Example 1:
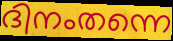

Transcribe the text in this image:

ദിനംതന്നെ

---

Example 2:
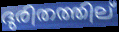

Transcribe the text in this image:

ദുരിതത്തില്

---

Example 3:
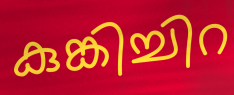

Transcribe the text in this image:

കുങ്കിച്ചിറ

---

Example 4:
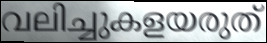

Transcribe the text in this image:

വലിച്ചുകളയരുത്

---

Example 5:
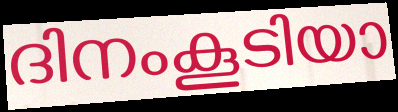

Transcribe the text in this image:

ദിനംകൂടിയാ